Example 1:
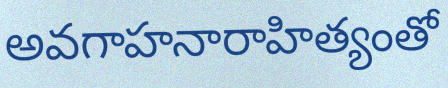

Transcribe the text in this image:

అవగాహనారాహిత్యంతో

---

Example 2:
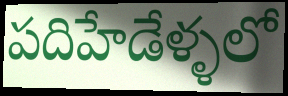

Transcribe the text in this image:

పదిహేడేళ్ళలో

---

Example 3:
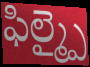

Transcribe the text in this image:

ఫిల్మ్పై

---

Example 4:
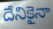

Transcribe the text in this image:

దేనికైనా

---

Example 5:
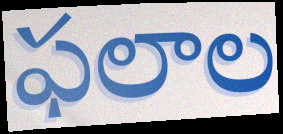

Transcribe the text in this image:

ఫలాల